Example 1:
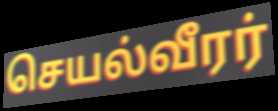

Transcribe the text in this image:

செயல்வீரர்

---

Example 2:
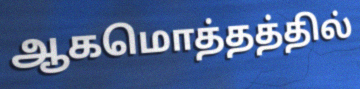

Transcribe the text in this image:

ஆகமொத்தத்தில்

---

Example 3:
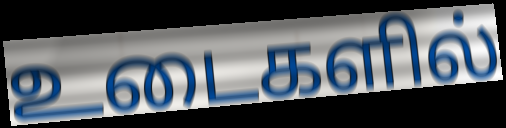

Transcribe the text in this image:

உடைகளில்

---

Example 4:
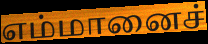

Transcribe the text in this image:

எம்மானைச்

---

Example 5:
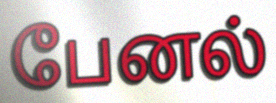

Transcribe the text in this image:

பேனல்